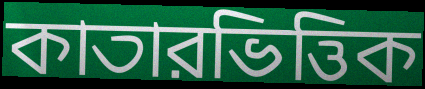
কাতারভিত্তিক